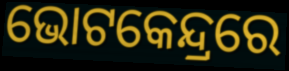
ଭୋଟକେନ୍ଦ୍ରରେ